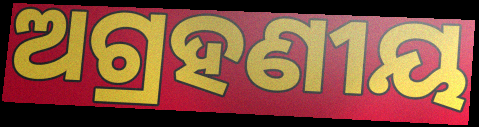
ଅଗ୍ରହଣୀୟ